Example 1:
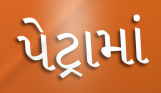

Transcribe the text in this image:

પેટ્રામાં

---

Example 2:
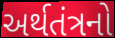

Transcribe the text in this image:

અર્થતંત્રનો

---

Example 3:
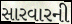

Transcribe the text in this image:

સારવારની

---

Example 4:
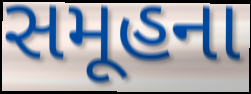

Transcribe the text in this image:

સમૂહના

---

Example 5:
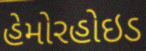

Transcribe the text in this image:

હેમોરહોઇડ